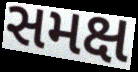
સમક્ષ